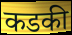
कडकी